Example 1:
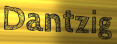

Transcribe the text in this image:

Dantzig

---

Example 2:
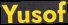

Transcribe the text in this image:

Yusof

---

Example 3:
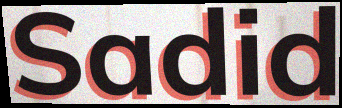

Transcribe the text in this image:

Sadid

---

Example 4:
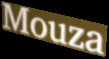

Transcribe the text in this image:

Mouza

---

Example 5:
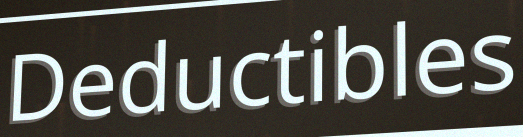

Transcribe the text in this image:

Deductibles